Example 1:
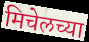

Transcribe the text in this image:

मिचेलच्या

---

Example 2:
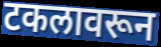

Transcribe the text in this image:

टकलावरून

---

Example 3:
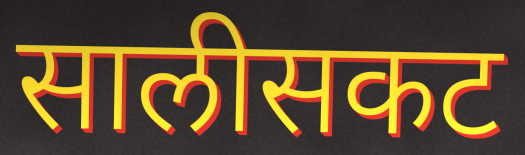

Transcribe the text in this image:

सालीसकट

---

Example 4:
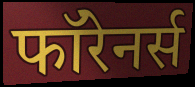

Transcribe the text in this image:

फॉरेनर्स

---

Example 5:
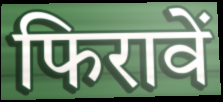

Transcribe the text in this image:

फिरावें